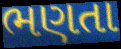
ભણતા